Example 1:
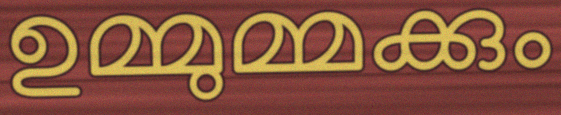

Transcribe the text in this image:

ഉമ്മുമ്മക്കും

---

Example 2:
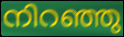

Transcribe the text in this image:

നിറഞ്ഞു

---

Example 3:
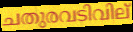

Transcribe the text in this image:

ചതുരവടിവില്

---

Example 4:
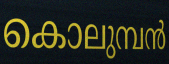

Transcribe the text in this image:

കൊലുമ്പൻ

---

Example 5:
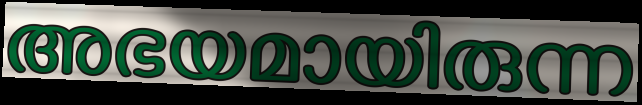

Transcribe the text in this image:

അഭയമായിരുന്ന